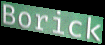
Borick